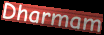
Dharmam